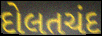
દોલતચંદ